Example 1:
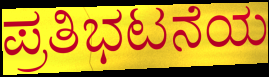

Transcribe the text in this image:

ಪ್ರತಿಭಟನೆಯ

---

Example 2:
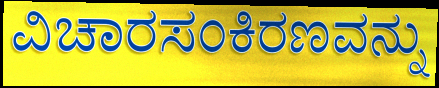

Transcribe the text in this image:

ವಿಚಾರಸಂಕಿರಣವನ್ನು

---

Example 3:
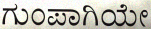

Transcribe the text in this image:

ಗುಂಪಾಗಿಯೇ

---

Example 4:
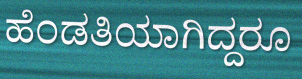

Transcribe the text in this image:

ಹೆಂಡತಿಯಾಗಿದ್ದರೂ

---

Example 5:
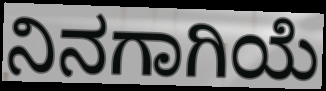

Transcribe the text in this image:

ನಿನಗಾಗಿಯೆ